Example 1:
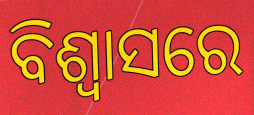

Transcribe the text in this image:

ବିଶ୍ୱାସରେ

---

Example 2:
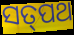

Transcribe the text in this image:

ସତ୍‌ପଥ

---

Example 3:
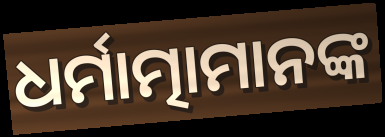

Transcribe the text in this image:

ଧର୍ମାତ୍ମାମାନଙ୍କ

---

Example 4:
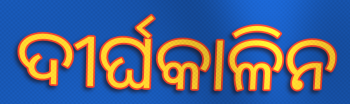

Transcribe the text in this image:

ଦୀର୍ଘକାଳିନ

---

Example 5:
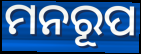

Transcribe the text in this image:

ମନରୂପ